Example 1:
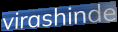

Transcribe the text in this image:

virashinde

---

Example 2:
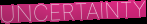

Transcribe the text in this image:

UNCERTAINTY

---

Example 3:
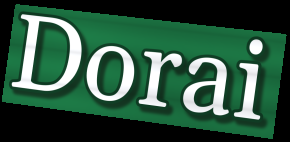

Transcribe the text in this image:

Dorai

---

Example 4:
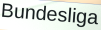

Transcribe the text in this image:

Bundesliga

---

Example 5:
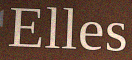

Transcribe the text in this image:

Elles